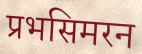
प्रभसिमरन